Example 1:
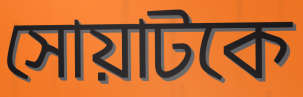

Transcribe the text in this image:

সোয়াটকে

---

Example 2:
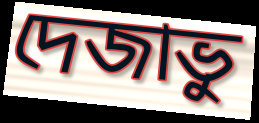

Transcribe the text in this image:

দেজাভু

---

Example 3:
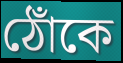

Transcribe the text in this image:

ঠোঁকে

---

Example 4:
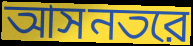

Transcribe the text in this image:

আসনতরে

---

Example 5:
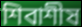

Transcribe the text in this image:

শিবাশীষ